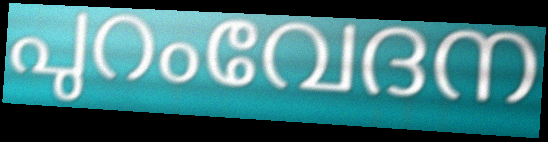
പുറംവേദന